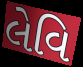
લેવિ